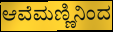
ಆವೆಮಣ್ಣಿನಿಂದ